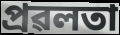
প্ৰৱলতা